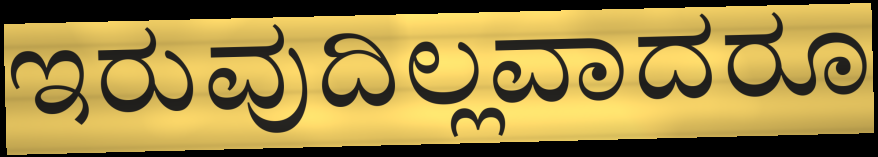
ಇರುವುದಿಲ್ಲವಾದರೂ